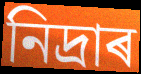
নিদ্ৰাৰ